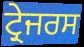
ਟ੍ਰੇਜਰਸ